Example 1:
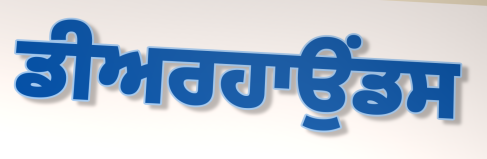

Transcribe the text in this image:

ਡੀਅਰਹਾਉਂਡਸ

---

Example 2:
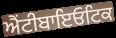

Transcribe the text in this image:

ਐਂਟੀਬਾਇਓਟਿਕ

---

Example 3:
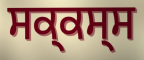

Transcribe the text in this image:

ਸਕ੍ਕਸ੍ਸ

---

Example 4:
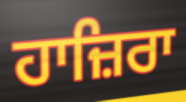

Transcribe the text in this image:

ਹਾਜ਼ਿਰਾ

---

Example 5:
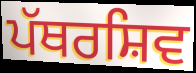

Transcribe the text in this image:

ਪੱਥਰਸ਼ਿਵ